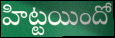
హిట్టయిందో